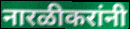
नारळीकरांनी